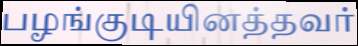
பழங்குடியினத்தவர்